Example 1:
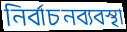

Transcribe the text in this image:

নির্বাচনব্যবস্থা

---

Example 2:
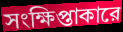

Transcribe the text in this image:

সংক্ষিপ্তাকারে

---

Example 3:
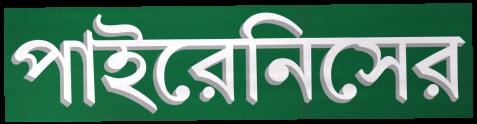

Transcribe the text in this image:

পাইরেনিসের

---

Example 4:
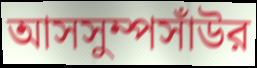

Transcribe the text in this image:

আসসুম্পসাঁউর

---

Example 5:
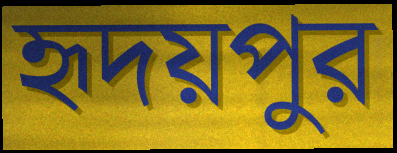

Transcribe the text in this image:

হৃদয়পুর